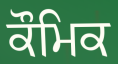
ਕੌਮਿਕ